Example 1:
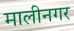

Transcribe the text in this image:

मालीनगर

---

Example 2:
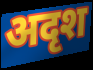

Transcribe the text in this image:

अदृश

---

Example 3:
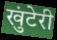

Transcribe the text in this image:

खुंटेरी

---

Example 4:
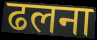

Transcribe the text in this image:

ढलना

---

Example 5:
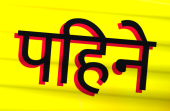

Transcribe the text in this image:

पहिने